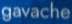
gavache